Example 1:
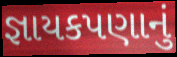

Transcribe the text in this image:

જ્ઞાયકપણાનું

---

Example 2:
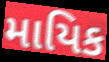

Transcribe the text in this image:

માયિક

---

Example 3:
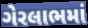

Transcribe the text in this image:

ગેરલાભમાં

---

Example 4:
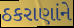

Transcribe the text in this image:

ઠકરાણાંને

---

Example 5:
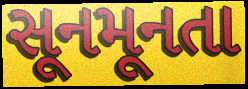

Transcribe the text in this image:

સૂનમૂનતા